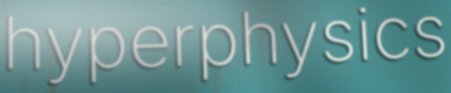
hyperphysics